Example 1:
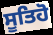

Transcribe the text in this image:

ਸੂਤਿਹੋ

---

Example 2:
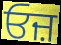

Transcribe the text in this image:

ਓਜ਼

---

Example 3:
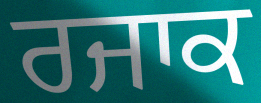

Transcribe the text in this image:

ਰਜਾਕ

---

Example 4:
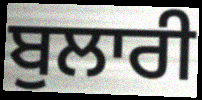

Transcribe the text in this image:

ਬੁਲਾਰੀ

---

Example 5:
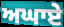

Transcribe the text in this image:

ਅਘਾਏ